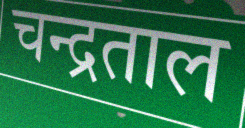
चन्द्रताल